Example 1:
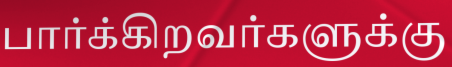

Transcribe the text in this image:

பார்க்கிறவர்களுக்கு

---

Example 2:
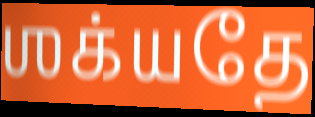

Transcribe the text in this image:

ஶக்யதே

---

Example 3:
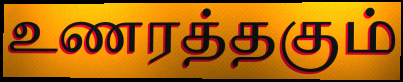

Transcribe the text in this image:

உணரத்தகும்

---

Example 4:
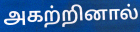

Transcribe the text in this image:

அகற்றினால்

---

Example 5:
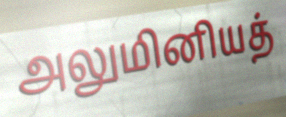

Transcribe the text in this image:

அலுமினியத்